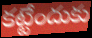
కట్టేందుకు